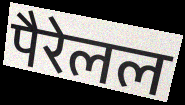
पैरेलल